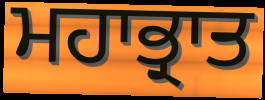
ਮਹਾਭ੍ਰਾਤ